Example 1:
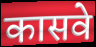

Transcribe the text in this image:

कासवे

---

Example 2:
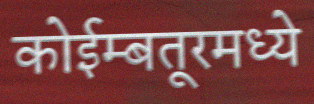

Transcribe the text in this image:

कोईम्बतूरमध्ये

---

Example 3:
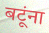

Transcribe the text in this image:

बटूंना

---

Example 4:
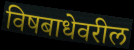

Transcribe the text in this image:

विषबाधेवरील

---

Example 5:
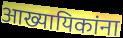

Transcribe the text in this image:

आख्यायिकांना